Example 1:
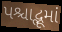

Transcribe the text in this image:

પશ્ચાદ્ભૂમાં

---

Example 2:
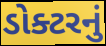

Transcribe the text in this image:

ડોક્ટરનું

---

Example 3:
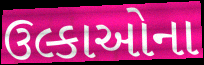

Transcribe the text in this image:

ઉલ્કાઓના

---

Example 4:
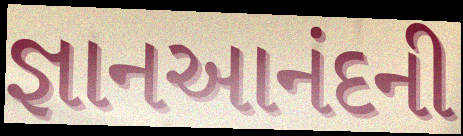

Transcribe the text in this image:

જ્ઞાનઆનંદની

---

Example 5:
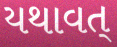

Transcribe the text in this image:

યથાવત્